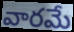
వారమే